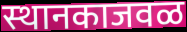
स्थानकाजवळ